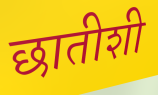
छातीशी